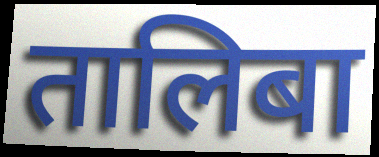
तालिबा